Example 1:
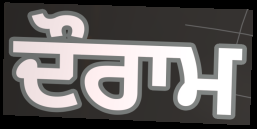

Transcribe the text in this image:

ਦੌਰਾਮ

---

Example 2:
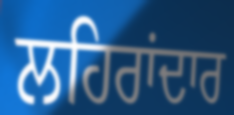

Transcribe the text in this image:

ਲਹਿਰਾਂਦਾਰ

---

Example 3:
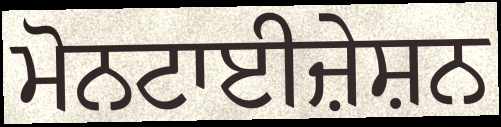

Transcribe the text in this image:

ਮੋਨਟਾਈਜ਼ੇਸ਼ਨ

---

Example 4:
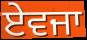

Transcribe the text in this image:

ਏਵਜਾ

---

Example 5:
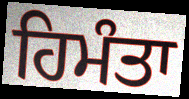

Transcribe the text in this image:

ਹਿਮੰਤਾ